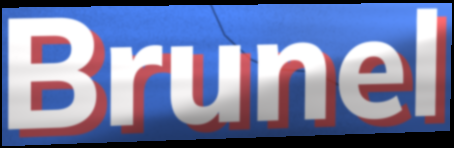
Brunel